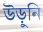
উড়ুনি